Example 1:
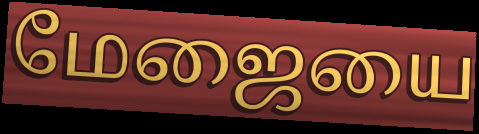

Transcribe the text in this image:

மேஜையை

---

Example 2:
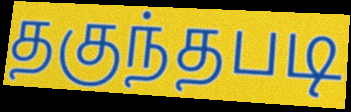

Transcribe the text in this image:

தகுந்தபடி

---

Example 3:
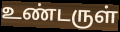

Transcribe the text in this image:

உண்டருள்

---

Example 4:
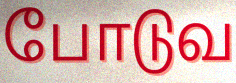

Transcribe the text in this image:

போடுவ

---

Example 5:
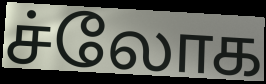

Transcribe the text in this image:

ச்லோக